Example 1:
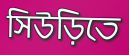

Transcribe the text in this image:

সিউড়িতে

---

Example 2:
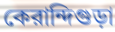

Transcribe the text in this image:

কেরান্দিগুড়া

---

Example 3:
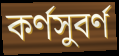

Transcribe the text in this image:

কর্ণসুবর্ণ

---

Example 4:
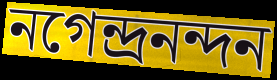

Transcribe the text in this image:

নগেন্দ্রনন্দন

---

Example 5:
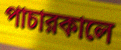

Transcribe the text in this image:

পাচারকালে